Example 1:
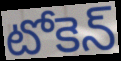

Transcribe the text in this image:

టోకెన్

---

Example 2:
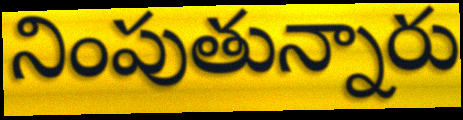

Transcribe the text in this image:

నింపుతున్నారు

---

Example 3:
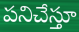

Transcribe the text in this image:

పనిచేస్తూ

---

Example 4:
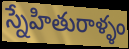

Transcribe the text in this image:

స్నేహితురాళ్ళం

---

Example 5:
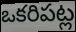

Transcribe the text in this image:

ఒకరిపట్ల